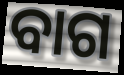
ବାଗ